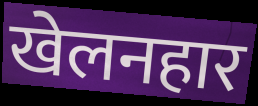
खेलनहार